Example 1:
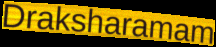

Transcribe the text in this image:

Draksharamam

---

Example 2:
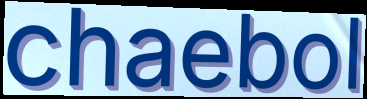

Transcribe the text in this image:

chaebol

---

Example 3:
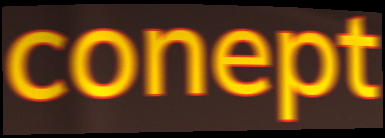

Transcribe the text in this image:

conept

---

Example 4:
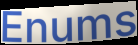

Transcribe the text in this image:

Enums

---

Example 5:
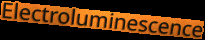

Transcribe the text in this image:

Electroluminescence